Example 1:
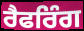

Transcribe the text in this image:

ਰੈਫਰਿੰਗ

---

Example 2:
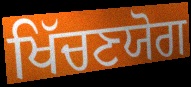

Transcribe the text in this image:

ਖਿੱਚਣਯੋਗ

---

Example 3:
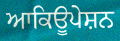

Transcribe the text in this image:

ਆਕਿਊਪੇਸ਼ਨ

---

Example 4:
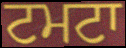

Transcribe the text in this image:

ਟਮਟਾ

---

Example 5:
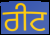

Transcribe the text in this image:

ਰੀਟ